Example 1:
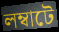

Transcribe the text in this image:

লম্বাটে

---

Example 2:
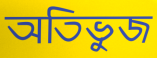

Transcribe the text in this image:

অতিভুজ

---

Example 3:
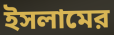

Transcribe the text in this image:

ইসলামের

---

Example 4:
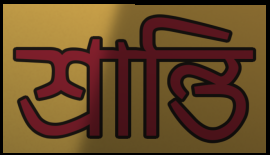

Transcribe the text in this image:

শ্রান্তি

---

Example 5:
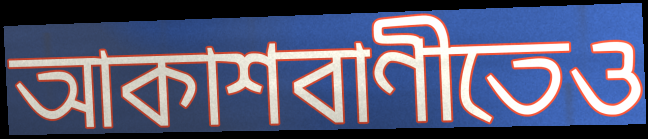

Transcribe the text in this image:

আকাশবাণীতেও